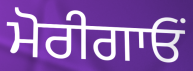
ਮੋਰੀਗਾਓਂ